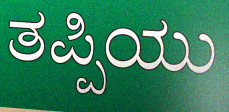
ತಪ್ಪಿಯು